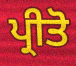
ਪ੍ਰੀਤੋ